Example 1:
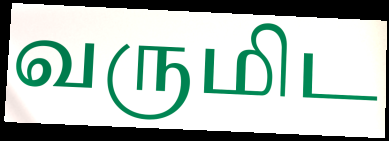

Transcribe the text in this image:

வருமிட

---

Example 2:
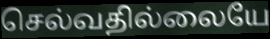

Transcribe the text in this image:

செல்வதில்லையே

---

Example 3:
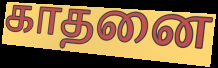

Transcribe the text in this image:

காதனை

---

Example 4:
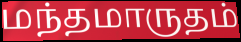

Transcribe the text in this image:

மந்தமாருதம்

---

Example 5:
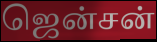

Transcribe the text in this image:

ஜென்சன்